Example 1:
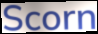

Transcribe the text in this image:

Scorn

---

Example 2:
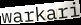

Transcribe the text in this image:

warkari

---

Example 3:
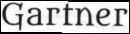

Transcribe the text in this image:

Gartner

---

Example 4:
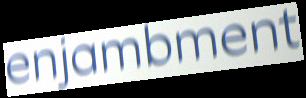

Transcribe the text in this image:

enjambment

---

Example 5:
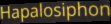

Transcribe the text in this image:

Hapalosiphon